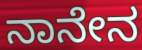
ನಾನೇನ